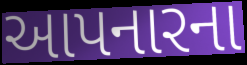
આપનારના